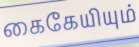
கைகேயியும்